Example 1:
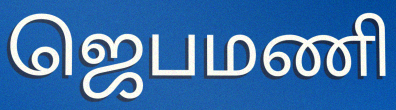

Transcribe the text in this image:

ஜெபமணி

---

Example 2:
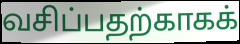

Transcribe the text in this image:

வசிப்பதற்காகக்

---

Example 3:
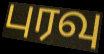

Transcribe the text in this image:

புரவு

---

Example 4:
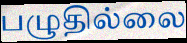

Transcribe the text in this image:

பழுதில்லை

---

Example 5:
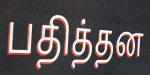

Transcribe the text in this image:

பதித்தன